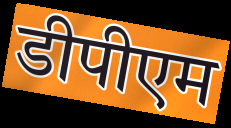
डीपीएम